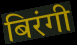
बिरंगी